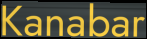
Kanabar